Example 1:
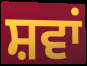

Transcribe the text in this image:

ਸ਼ਵਾਂ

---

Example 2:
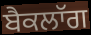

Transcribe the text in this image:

ਬੈਕਲਾੱਗ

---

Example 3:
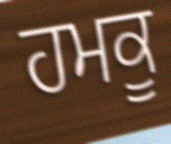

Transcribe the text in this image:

ਹਮਕੂ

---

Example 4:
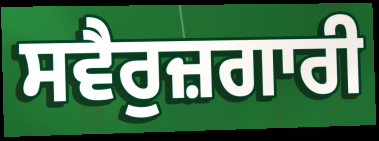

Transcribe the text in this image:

ਸਵੈਰੁਜ਼ਗਾਰੀ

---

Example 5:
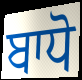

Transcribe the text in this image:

ਬਾਧੋ